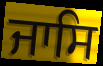
ਜਾਸਿ